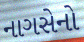
નાગસેનો